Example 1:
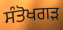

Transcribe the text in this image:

ਸੰਤੋਖਗੜ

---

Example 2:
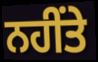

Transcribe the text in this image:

ਨਹੀਂਤੇ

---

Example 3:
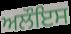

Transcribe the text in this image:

ਅਲੌਇਸ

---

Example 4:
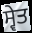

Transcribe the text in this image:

ਸ੍ਵੇਤ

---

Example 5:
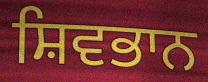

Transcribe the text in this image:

ਸ਼ਿਵਭਾਨ